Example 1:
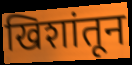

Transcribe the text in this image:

खिशांतून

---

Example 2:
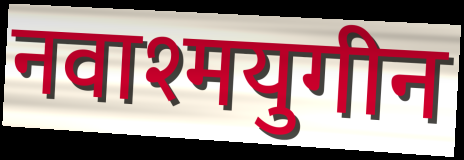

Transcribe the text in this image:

नवाश्मयुगीन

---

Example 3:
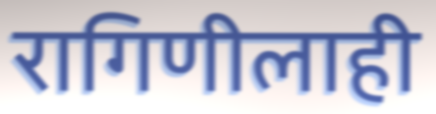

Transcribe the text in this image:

रागिणीलाही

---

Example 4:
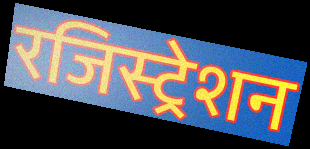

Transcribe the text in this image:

रजिस्ट्रेशन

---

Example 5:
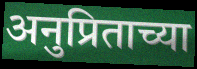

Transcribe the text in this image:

अनुप्रिताच्या